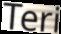
Teri